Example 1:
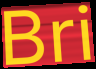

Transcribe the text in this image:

Bri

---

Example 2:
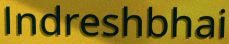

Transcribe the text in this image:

Indreshbhai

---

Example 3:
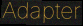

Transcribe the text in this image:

Adapter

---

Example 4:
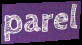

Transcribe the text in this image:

parel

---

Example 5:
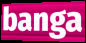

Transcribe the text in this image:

banga